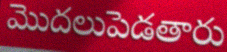
మొదలుపెడతారు